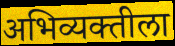
अभिव्यक्तीला